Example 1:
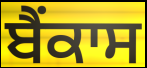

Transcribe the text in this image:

ਬੈਂਕਾਸ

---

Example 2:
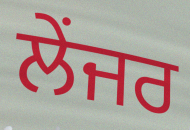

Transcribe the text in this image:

ਲੇਂਜਰ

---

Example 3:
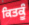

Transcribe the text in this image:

ਕਿਤਕੂੰ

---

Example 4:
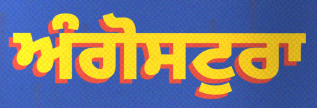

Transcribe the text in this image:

ਅੰਗੋਸਟੁਰਾ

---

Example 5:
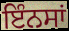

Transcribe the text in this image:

ਇੰਨਸਾਂ